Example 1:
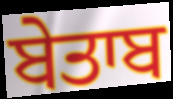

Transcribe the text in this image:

ਬੇਤਾਬ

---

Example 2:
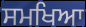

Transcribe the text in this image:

ਸਮਖਿਆ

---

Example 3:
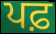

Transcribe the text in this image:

ਪਫ਼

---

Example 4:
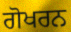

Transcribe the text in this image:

ਗੋਖਰਨ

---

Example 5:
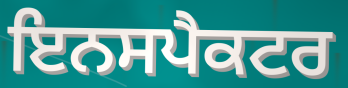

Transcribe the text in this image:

ਇਨਸਪੈਕਟਰ